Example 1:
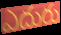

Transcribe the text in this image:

ఎదురు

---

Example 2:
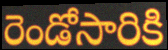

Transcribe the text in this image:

రెండోసారికి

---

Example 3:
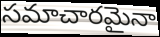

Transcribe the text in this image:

సమాచారమైనా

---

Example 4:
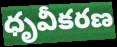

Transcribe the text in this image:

ధృవీకరణ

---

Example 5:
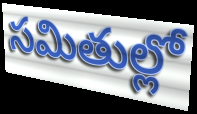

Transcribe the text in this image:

సమితుల్లో